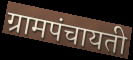
ग्रामपंचायती